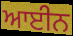
ਆਈਨ